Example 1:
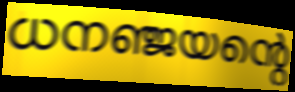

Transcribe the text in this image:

ധനഞ്ജയന്റെ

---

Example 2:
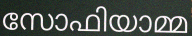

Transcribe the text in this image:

സോഫിയാമ്മ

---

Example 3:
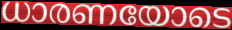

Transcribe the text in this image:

ധാരണയോടെ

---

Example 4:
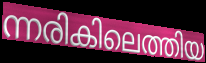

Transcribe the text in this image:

ന്നരികിലെത്തിയ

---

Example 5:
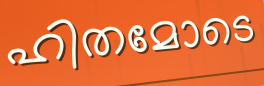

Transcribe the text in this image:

ഹിതമോടെ